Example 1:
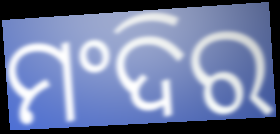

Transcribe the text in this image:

ମଂଦିର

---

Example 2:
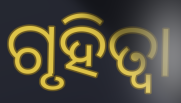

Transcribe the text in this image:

ଗୃହିତ୍ବା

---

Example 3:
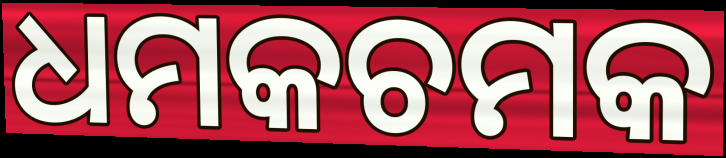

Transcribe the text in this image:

ଧମକଚମକ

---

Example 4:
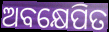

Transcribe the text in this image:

ଅବକ୍ଷେପିତ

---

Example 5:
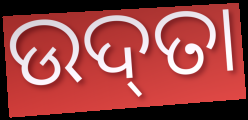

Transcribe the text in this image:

ଉଦ୍‌ତା